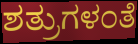
ಶತ್ರುಗಳಂತೆ